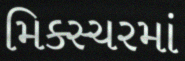
મિક્સ્ચરમાં